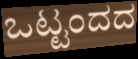
ಒಟ್ಟಂದದ